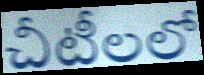
చీటీలలో